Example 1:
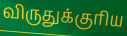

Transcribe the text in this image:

விருதுக்குரிய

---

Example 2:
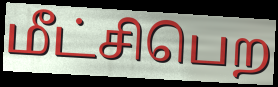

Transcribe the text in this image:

மீட்சிபெற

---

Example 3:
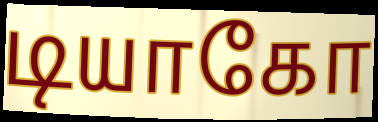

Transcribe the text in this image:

டியாகோ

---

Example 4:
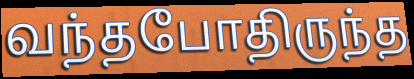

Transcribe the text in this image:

வந்தபோதிருந்த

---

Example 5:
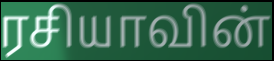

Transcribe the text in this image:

ரசியாவின்